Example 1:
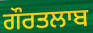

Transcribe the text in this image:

ਗੌਰਤਲਾਬ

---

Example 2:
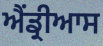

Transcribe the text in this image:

ਐਂਡ੍ਰੀਆਸ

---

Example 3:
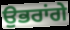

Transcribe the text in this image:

ਉਭਰਾਂਗੇ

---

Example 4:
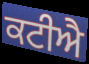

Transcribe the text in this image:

ਕਟੀਐ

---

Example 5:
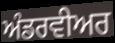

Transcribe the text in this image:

ਅੰਡਰਵੀਅਰ